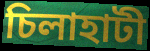
চিলাহাটী